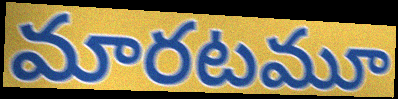
మారటమూ